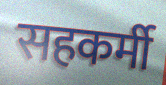
सहकर्मी